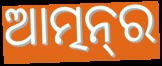
ଆତ୍ମନ୍‌ର